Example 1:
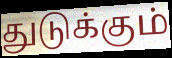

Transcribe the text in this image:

துடுக்கும்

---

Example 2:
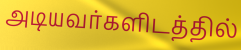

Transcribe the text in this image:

அடியவர்களிடத்தில்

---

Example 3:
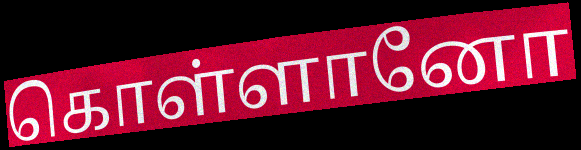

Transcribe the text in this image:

கொள்ளானோ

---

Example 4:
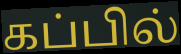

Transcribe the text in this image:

கப்பில்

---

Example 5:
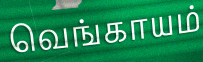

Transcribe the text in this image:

வெங்காயம்